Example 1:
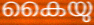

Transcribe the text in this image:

കൈയു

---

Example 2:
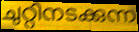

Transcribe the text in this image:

ചുറ്റിനടക്കുന്ന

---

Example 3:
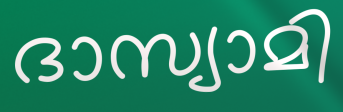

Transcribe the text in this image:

ദാസ്യാമി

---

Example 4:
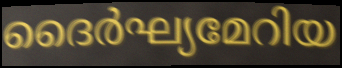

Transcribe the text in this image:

ദൈർഘ്യമേറിയ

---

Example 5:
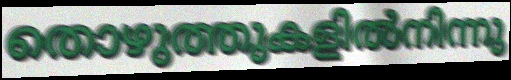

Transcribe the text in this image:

തൊഴുത്തുകളിൽനിന്നു